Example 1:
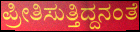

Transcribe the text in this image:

ಪ್ರೀತಿಸುತ್ತಿದ್ದನಂತೆ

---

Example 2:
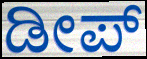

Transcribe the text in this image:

ಡೀಪ್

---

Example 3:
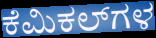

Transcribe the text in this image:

ಕೆಮಿಕಲ್‌ಗಳ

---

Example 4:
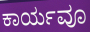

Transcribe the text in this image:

ಕಾರ್ಯವೂ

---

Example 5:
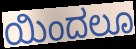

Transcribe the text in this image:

ಯಿಂದಲೂ